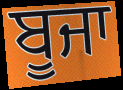
ਬੂਜਾ